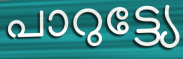
പാറുട്ട്യേ